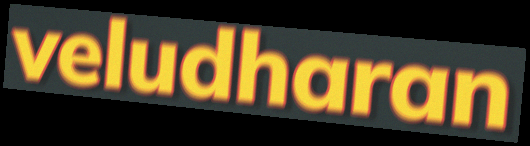
veludharan